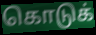
கொடுக்